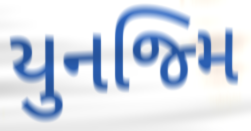
યુનજ્મિ